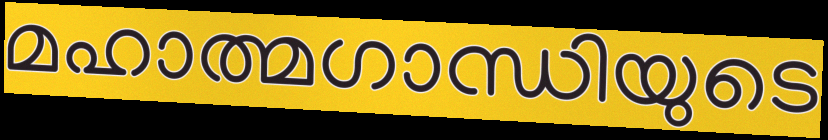
മഹാത്മഗാന്ധിയുടെ